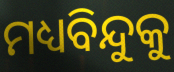
ମଧ୍ୟବିନ୍ଦୁକୁ